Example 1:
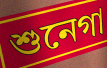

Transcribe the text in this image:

শুনেগা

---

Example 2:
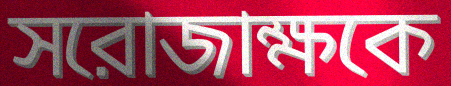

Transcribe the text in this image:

সরোজাক্ষকে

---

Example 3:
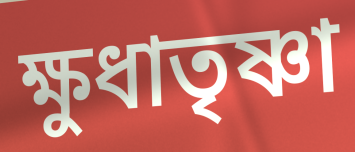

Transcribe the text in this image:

ক্ষুধাতৃষ্ণা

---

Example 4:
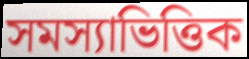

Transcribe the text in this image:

সমস্যাভিত্তিক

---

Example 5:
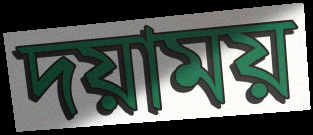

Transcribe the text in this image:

দয়াময়